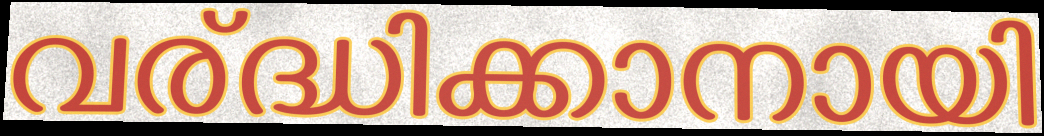
വര്ദ്ധിക്കാനായി